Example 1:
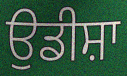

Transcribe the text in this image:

ਉਡੀਸ਼ਾ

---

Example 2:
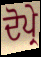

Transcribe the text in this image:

ਦੋਪ੍ਰੇ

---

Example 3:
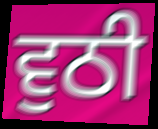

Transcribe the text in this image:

ਵੁਠੀ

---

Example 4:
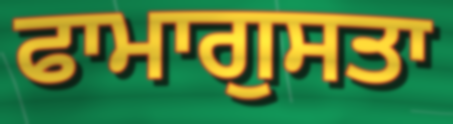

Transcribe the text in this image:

ਫਾਮਾਗੁਸਤਾ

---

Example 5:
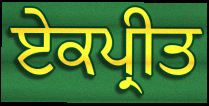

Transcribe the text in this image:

ਏਕਪ੍ਰੀਤ